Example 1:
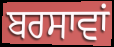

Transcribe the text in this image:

ਬਰਸਾਵਾਂ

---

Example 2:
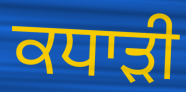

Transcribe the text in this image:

ਕਧਾੜੀ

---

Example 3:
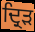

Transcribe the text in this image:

ਦ੍ਰਿਡ਼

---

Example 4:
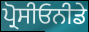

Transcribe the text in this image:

ਪ੍ਰੋਸੀਓਨੀਡੇ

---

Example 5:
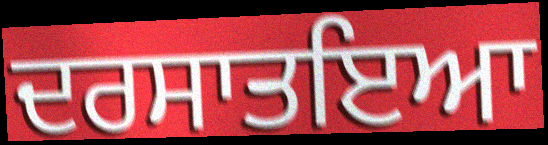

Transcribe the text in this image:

ਦਰਸਾਤਇਆ